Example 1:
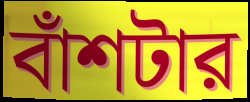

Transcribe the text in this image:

বাঁশটার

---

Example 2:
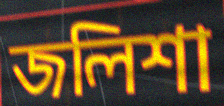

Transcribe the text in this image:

জলিশা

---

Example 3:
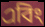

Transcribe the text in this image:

এবিং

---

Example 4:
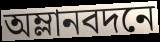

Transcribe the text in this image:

অম্লানবদনে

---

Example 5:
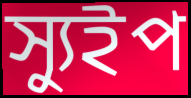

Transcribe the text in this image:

স্যুইপ